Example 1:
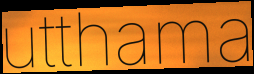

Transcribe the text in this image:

utthama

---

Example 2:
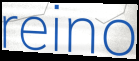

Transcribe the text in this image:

reino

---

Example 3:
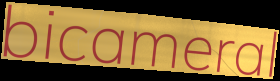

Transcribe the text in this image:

bicameral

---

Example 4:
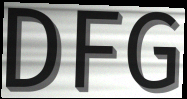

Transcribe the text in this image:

DFG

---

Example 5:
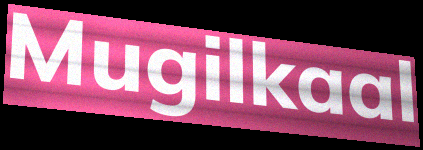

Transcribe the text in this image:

Mugilkaal